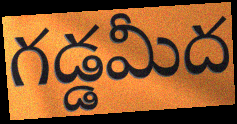
గడ్డమీద